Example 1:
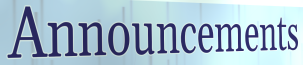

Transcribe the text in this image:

Announcements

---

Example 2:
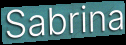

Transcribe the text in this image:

Sabrina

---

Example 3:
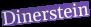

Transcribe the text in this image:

Dinerstein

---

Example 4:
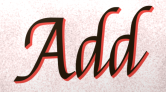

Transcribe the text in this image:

Add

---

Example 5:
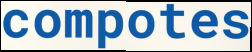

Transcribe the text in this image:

compotes